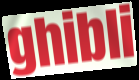
ghibli